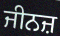
ਜੀਨਜ਼